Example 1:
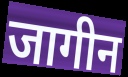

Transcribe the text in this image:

जागीन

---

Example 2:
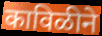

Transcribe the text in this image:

काविळीने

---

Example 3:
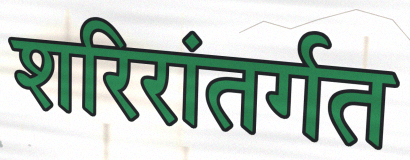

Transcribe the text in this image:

शरिरांतर्गत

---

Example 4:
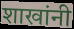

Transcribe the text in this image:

शाखांनी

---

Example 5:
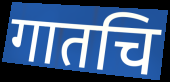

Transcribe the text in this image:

गातचि